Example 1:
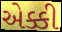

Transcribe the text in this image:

એક્કી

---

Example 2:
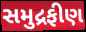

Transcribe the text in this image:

સમુદ્રફીણ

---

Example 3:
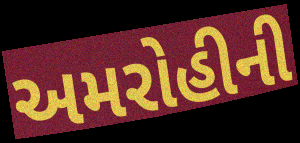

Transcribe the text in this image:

અમરોહીની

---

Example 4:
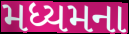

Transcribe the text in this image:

મધ્યમના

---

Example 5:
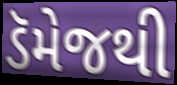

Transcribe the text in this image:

ડૅમેજથી